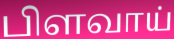
பிளவாய்